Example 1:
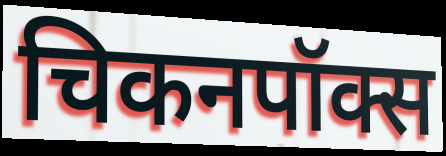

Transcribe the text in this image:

चिकनपॉक्स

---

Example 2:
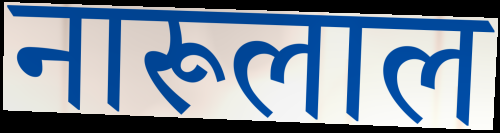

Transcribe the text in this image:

नारूलाल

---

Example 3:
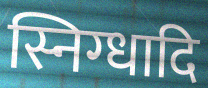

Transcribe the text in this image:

स्निग्धादि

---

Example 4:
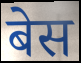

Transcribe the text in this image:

बेस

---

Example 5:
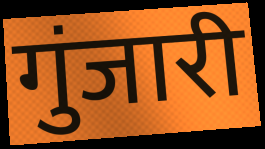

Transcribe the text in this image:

गुंजारी